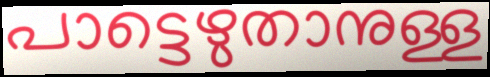
പാട്ടെഴുതാനുള്ള